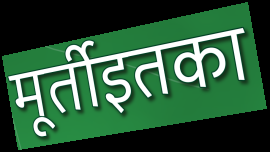
मूर्तीइतका